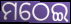
ମଠେଇ